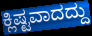
ಕ್ಲಿಷ್ಟವಾದದ್ದು